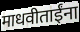
माधवीताईंना